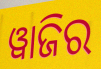
ୱାଜିର